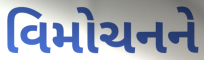
વિમોચનને